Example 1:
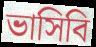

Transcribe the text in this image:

ভাসিবি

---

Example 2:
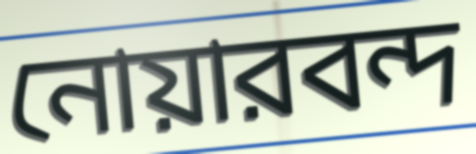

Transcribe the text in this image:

নোয়ারবন্দ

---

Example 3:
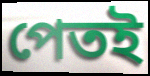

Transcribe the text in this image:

পেতই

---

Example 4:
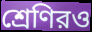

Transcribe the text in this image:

শ্রেণিরও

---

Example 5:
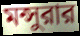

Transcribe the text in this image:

মন্সুরার